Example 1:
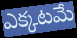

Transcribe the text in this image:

ఎక్కటమే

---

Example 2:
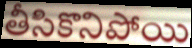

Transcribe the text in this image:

తీసికొనిపోయి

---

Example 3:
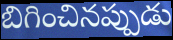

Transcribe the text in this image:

బిగించినప్పుడు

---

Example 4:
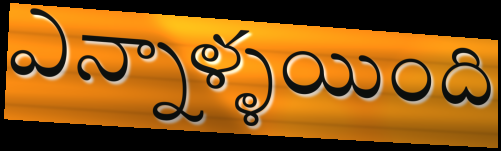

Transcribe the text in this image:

ఎన్నాళ్ళయింది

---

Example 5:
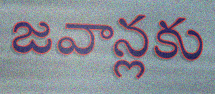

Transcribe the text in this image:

జవాన్లకు